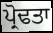
ਪ੍ਰੋਢਤਾ